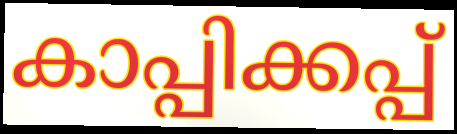
കാപ്പിക്കപ്പ്